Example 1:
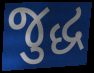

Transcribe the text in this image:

જુદ્ધ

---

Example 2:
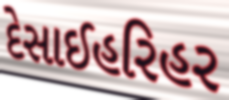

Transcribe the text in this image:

દેસાઈહરિહર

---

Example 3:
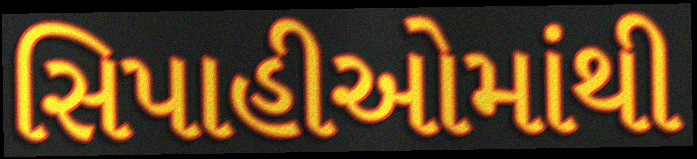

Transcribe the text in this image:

સિપાહીઓમાંથી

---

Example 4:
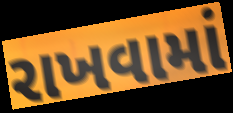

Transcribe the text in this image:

રાખવામાં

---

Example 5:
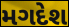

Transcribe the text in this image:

મગદેશ